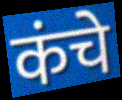
कंचे